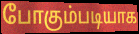
போகும்படியாக